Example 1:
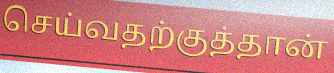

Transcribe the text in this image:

செய்வதற்குத்தான்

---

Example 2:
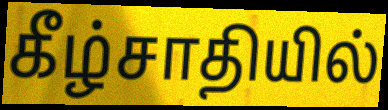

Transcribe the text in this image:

கீழ்சாதியில்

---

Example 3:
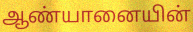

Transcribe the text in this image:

ஆண்யானையின்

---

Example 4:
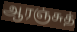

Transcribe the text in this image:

ஆரஞ்சுத்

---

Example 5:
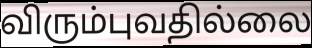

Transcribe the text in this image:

விரும்புவதில்லை